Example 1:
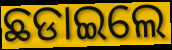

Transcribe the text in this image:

ଛଡାଇଲେ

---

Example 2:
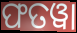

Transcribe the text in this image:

ଫତୱା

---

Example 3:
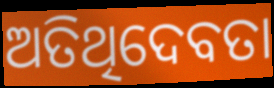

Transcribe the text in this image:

ଅତିଥିଦେବତା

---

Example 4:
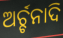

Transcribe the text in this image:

ଅର୍ଚ୍ଚନାଦି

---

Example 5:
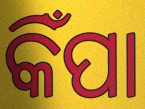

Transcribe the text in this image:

କିଁପା